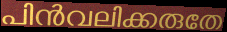
പിൻവലിക്കരുതേ